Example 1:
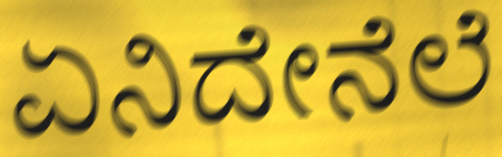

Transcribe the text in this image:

ಏನಿದೇನೆಲೆ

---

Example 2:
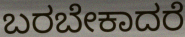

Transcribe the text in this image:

ಬರಬೇಕಾದರೆ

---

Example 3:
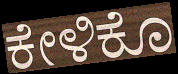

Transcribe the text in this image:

ಕೇಳಿಕೊ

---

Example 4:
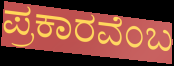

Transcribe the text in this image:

ಪ್ರಕಾರವೆಂಬ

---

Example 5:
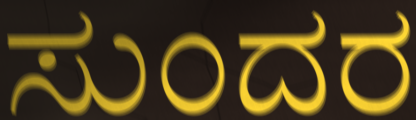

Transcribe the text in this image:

ಸುಂದರ